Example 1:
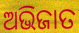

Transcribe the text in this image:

ଅଭିଜାତ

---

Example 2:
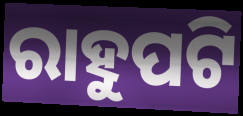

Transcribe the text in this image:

ରାହୁପଟି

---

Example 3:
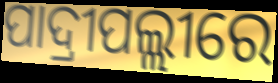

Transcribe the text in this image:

ପାଦ୍ରୀପଲ୍ଲୀରେ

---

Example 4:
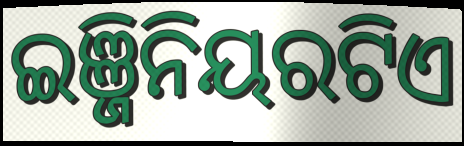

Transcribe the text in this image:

ଇଞ୍ଜିନିୟରଟିଏ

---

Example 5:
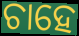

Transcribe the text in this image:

ଚାହେ